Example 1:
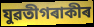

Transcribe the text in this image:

যুৱতীগৰাকীৰ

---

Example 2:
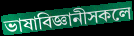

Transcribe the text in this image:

ভাষাবিজ্ঞানীসকলে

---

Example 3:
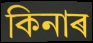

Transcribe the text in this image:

কিনাৰ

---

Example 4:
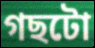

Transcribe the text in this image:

গছটো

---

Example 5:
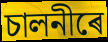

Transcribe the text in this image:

চালনীৰে